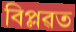
বিপ্লৱত